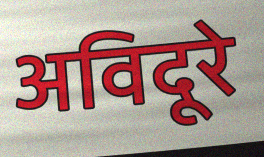
अविदूरे